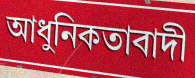
আধুনিকতাবাদী